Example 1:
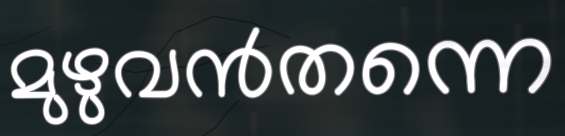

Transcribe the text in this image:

മുഴുവൻതന്നെ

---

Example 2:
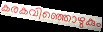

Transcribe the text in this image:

കരകവിഞ്ഞൊഴുകും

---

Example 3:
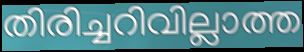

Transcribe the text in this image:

തിരിച്ചറിവില്ലാത്ത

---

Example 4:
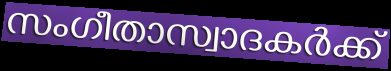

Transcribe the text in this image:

സംഗീതാസ്വാദകർക്ക്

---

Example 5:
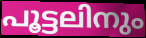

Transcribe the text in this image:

പൂട്ടലിനും